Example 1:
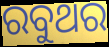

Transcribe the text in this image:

ରବୁଥର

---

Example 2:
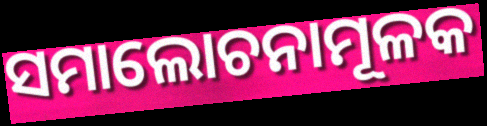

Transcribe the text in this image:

ସମାଲୋଚନାମୂଳକ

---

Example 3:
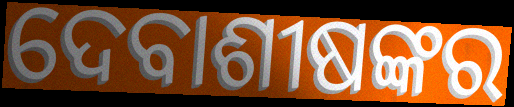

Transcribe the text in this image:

ଦେବାଶୀଷଙ୍କର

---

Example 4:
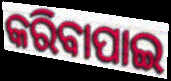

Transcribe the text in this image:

କରିବାପାଇ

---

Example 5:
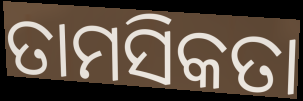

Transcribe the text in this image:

ତାମସିକତା